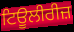
ਟਿਊਲੀਰੀਜ਼